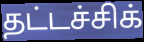
தட்டச்சிக்